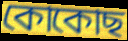
কোকোছ